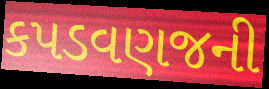
કપડવણજની